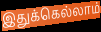
இதுக்கெல்லாம்